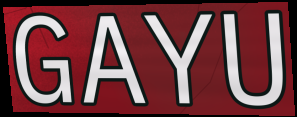
GAYU